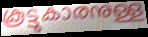
കൂട്ടുകാരനുള്ള